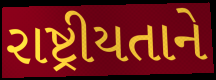
રાષ્ટ્રીયતાને